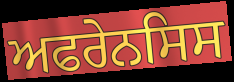
ਅਫਰੇਨਸਿਸ